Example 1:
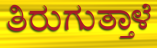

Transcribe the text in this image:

ತಿರುಗುತ್ತಾಳೆ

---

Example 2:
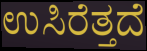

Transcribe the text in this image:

ಉಸಿರೆತ್ತದೆ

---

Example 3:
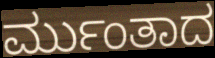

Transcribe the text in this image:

ರ್ಮುಂತಾದ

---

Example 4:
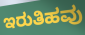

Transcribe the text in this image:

ಇರುತಿಹವು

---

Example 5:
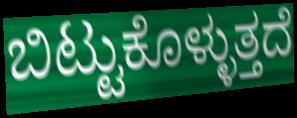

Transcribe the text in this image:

ಬಿಟ್ಟುಕೊಳ್ಳುತ್ತದೆ